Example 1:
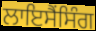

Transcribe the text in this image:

ਲਾਇਸੈਂਸਿੰਗ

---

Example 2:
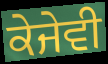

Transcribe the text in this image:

ਕੇਜੇਵੀ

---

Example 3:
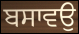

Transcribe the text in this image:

ਬਸਾਵਉ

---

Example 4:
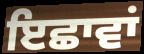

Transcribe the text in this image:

ਇਛਾਵਾਂ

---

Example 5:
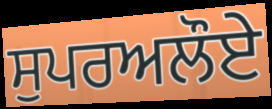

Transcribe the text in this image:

ਸੁਪਰਅਲੌਏ